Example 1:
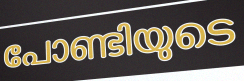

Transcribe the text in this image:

പോണ്ടിയുടെ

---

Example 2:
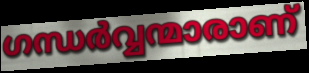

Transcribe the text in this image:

ഗന്ധർവ്വന്മാരാണ്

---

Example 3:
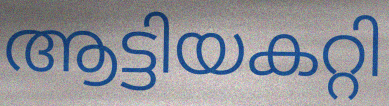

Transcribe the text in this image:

ആട്ടിയകറ്റി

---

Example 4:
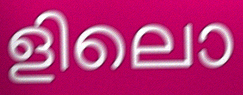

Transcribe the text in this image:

ളിലൊ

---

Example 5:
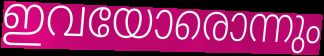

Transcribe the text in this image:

ഇവയോരൊന്നും